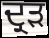
ਦ੍ਰੜ